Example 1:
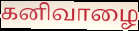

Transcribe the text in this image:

கனிவாழை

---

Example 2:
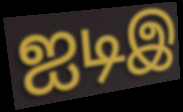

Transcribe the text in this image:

ஐடிஇ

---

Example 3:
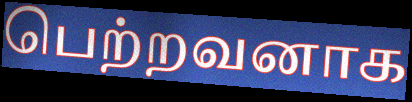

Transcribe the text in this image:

பெற்றவனாக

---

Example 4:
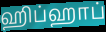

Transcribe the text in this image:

ஹிப்ஹாப்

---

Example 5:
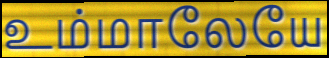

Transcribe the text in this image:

உம்மாலேயே